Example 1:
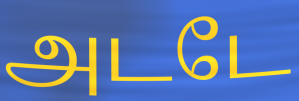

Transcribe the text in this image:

அடடே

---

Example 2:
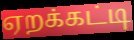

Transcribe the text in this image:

ஏறக்கட்டி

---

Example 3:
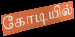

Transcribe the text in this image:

கோடியில்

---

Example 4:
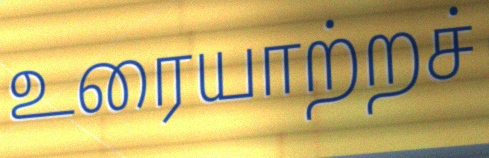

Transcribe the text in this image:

உரையாற்றச்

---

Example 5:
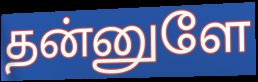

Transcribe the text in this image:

தன்னுளே